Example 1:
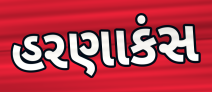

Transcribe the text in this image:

હરણાકંસ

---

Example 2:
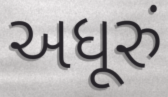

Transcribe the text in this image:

અધૂરું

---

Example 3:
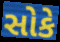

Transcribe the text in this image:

સોકે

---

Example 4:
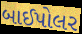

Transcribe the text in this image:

બાઈપોલર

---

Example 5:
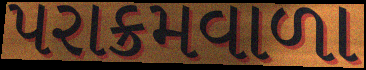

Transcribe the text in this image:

પરાક્રમવાળા